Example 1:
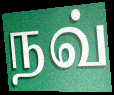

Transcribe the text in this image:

நவ்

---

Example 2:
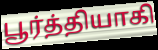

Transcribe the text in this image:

பூர்த்தியாகி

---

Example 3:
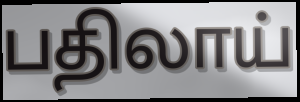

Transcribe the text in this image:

பதிலாய்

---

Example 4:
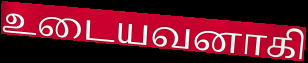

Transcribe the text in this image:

உடையவனாகி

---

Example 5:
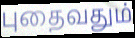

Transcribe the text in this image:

புதைவதும்